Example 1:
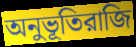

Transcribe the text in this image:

অনুভূতিরাজি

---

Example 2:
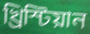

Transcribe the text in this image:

খ্রিস্টিয়ান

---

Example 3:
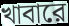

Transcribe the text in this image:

খাবারে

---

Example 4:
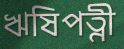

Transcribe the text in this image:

ঋষিপত্নী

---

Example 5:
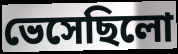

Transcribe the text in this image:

ভেসেছিলো